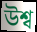
উশ্ব